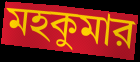
মহকুমার